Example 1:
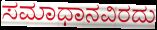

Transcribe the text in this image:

ಸಮಾಧಾನವಿರದು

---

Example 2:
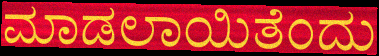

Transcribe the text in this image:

ಮಾಡಲಾಯಿತೆಂದು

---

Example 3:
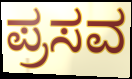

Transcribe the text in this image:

ಪ್ರಸವ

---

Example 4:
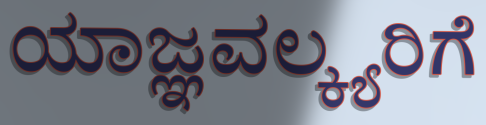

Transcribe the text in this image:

ಯಾಜ್ಞವಲ್ಕ್ಯರಿಗೆ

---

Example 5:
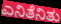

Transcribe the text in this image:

ಎನಿತೆನಿತು